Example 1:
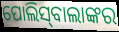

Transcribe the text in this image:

ପୋଲିସ୍‌ବାଲାଙ୍କର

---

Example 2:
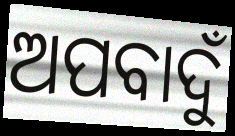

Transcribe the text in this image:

ଅପବାଦୁଁ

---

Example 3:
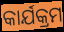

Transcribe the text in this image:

କାର୍ଯକ୍ରମ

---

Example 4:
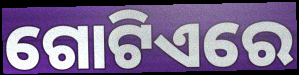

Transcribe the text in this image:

ଗୋଟିଏରେ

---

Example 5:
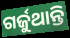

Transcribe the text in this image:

ଗର୍ଜୁଥାନ୍ତି